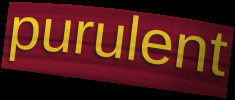
purulent